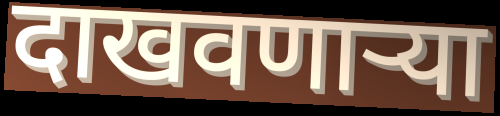
दाखवणाऱ्या